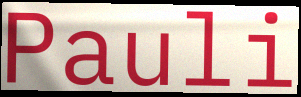
Pauli